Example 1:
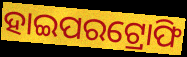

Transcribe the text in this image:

ହାଇପରଟ୍ରୋଫି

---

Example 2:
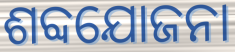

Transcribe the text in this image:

ଶବ୍ଦଯୋଜନା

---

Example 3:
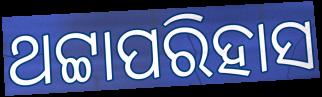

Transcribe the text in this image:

ଥଟ୍ଟାପରିହାସ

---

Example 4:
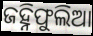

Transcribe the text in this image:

ଜହ୍ନିଫୁଲିଆ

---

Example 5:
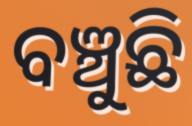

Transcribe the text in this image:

ବଞ୍ଚୁଛି